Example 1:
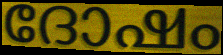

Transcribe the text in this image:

ദോഷം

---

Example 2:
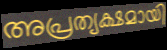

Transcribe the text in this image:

അപ്രത്യക്ഷമായി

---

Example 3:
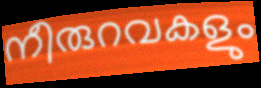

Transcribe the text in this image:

നീരുറവകളും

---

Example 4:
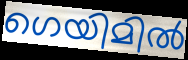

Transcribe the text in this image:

ഗെയിമിൽ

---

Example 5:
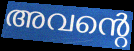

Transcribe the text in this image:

അവന്റെ